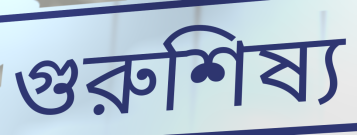
গুরুশিষ্য